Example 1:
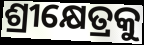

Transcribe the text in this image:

ଶ୍ରୀକ୍ଷେତ୍ରକୁ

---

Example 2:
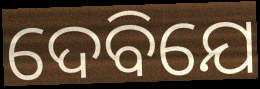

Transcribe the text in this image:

ଦେବିଯେ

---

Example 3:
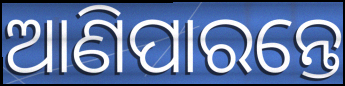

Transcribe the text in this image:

ଆଣିପାରନ୍ତେ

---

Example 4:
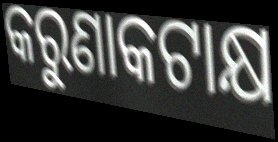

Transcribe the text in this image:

କରୁଣାକଟାକ୍ଷ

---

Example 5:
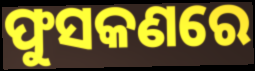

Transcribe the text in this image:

ଫୁସକଣରେ